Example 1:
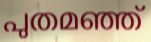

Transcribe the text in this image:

പുതമഞ്ഞ്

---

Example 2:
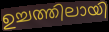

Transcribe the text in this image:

ഉച്ചത്തിലായി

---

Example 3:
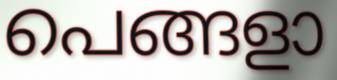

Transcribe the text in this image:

പെങ്ങളാ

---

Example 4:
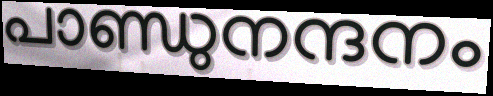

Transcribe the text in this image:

പാണ്ഡുനന്ദനം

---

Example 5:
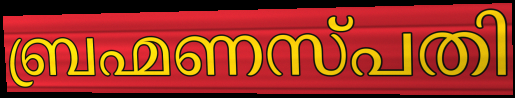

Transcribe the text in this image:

ബ്രഹ്മണസ്പതി